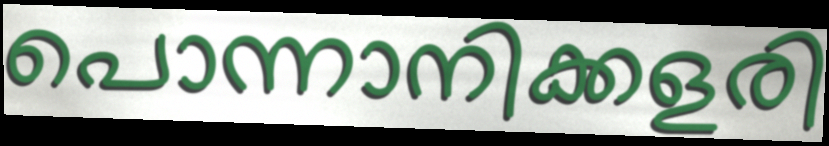
പൊന്നാനിക്കളരി